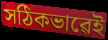
সঠিকভাৱেই